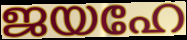
ജയഹേ